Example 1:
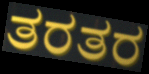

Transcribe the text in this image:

ತರತರ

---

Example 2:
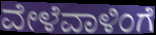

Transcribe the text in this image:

ವೇಳೆವಾಳಿಂಗೆ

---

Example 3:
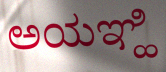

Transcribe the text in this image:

ಅಯಞ್ಹಿ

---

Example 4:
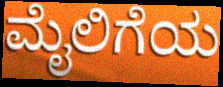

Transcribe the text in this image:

ಮೈಲಿಗೆಯ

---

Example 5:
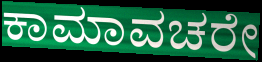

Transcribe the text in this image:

ಕಾಮಾವಚರೇ